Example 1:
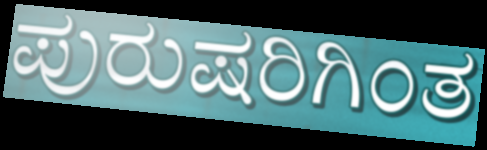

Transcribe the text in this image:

ಪುರುಷರಿಗಿಂತ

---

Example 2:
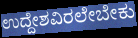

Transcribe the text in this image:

ಉದ್ದೇಶವಿರಲೇಬೇಕು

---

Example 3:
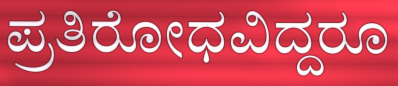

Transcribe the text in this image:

ಪ್ರತಿರೋಧವಿದ್ದರೂ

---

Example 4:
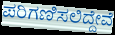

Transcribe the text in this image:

ಪರಿಗಣಿಸಲಿದ್ದೇವೆ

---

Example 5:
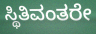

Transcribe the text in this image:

ಸ್ಥಿತಿವಂತರೇ